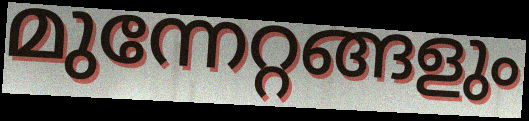
മുന്നേറ്റങ്ങളും